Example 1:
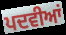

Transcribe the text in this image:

ਪਦਵੀਆਂ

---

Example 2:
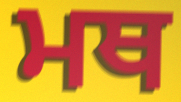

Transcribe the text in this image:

ਮਥ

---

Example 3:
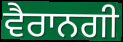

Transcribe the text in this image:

ਵੈਰਾਨਗੀ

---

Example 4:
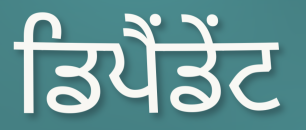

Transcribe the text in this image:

ਡਿਪੈਂਡੇਂਟ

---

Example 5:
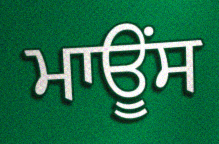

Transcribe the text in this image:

ਮਾਊਂਸ